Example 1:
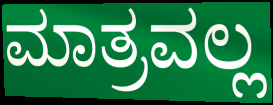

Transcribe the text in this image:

ಮಾತ್ರವಲ್ಲ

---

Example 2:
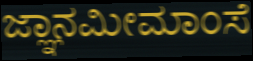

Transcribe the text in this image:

ಜ್ಞಾನಮೀಮಾಂಸೆ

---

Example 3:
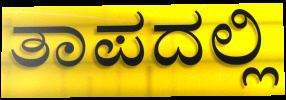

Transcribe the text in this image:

ತಾಪದಲ್ಲಿ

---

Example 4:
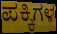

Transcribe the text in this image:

ಪಕ್ಕಿಗಳ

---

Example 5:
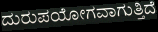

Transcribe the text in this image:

ದುರುಪಯೋಗವಾಗುತ್ತಿದೆ